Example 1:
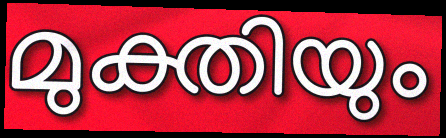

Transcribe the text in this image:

മുക്തിയും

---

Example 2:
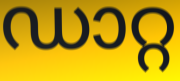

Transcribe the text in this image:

ഡാറ്റ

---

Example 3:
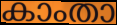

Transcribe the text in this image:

കാംതാ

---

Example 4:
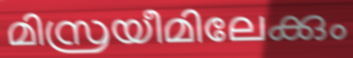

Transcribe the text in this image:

മിസ്രയീമിലേക്കും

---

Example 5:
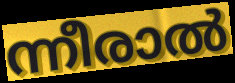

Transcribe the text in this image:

ന്നീരാൽ